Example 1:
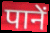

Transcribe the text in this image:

पानें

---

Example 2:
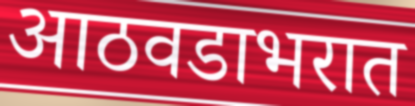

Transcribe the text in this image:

आठवडाभरात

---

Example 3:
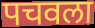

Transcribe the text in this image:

पचवला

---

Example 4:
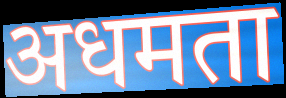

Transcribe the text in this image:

अधमता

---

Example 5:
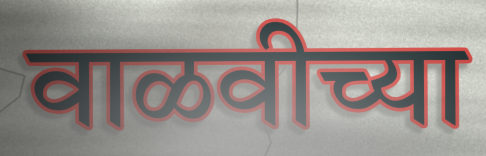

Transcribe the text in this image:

वाळवीच्या